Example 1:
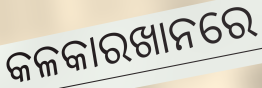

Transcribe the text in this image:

କଳକାରଖାନରେ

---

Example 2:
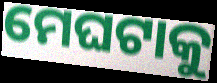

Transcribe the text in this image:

ମେଘଟାକୁ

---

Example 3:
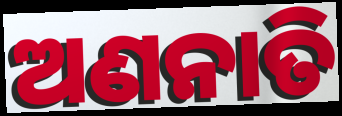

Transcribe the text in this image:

ଅଣନାତି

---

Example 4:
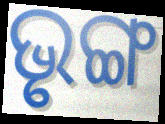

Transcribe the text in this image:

ଭୃଙ୍ଗ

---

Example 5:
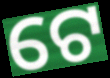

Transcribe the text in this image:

ଟେ